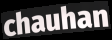
chauhan